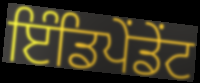
ਇੰਡਿਪੇਂਡੇਂਟ